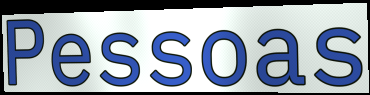
Pessoas